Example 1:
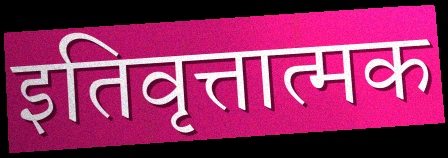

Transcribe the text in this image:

इतिवृत्तात्मक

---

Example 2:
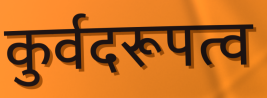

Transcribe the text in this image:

कुर्वदरूपत्व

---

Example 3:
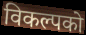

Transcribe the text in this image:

विकल्पको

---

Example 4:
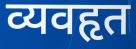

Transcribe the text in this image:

व्यवहृत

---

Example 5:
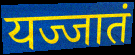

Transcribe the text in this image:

यज्जातं